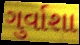
ગુર્વાશા